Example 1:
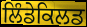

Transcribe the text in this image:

ਲਿੰਡੇਕਿਲਡ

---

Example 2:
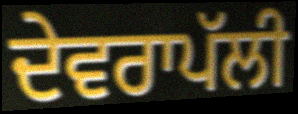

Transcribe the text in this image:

ਦੇਵਰਾਪੱਲੀ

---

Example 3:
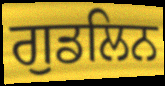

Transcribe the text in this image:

ਗੁਡਲਿਨ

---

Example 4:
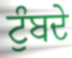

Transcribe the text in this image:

ਟੁੰਬਦੇ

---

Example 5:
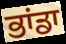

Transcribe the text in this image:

ਭਾਂਡਾ